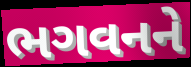
ભગવનને